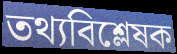
তথ্যবিশ্লেষক